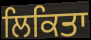
ਲਿਕਿਤਾ